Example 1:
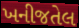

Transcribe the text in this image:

ખનીજતેલ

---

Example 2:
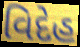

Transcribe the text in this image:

વિદેહ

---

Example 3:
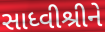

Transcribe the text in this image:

સાધ્વીશ્રીને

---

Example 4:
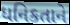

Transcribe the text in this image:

ધનિકતાને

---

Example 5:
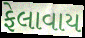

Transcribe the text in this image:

ફેલાવાય